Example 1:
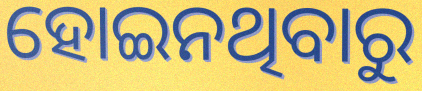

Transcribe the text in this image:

ହୋଇନଥିବାରୁ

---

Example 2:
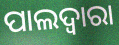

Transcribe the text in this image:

ପାଲଦ୍ୱାରା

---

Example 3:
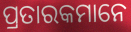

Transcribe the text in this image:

ପ୍ରତାରକମାନେ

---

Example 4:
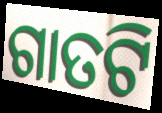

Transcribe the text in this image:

ଗାତଟି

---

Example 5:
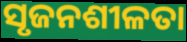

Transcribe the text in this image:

ସୃଜନଶୀଳତା